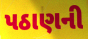
પઠાણની